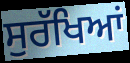
ਸੁਰੱਖਿਆਂ